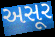
અસૂર